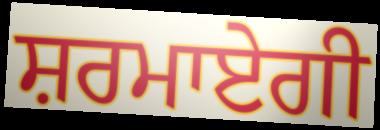
ਸ਼ਰਮਾਏਗੀ